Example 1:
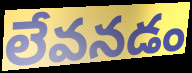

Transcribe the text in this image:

లేవనడం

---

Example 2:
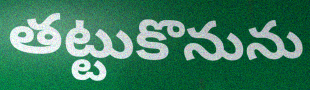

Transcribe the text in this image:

తట్టుకొనును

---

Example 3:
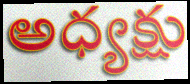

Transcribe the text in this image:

అధ్యక్షు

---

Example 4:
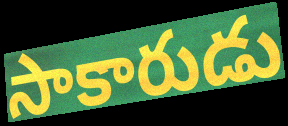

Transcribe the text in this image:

సాకారుడు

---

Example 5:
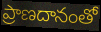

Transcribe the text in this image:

ప్రాణదానంతో